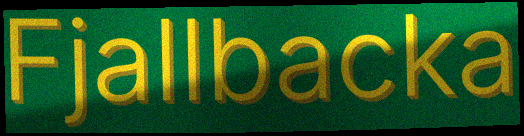
Fjallbacka